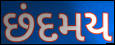
છંદમય